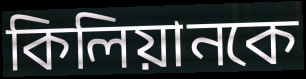
কিলিয়ানকে